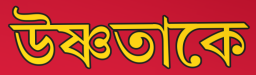
উষ্ণতাকে